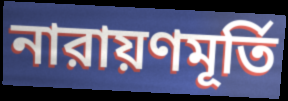
নারায়ণমূর্তি